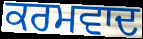
ਕਰਮਵਾਦ